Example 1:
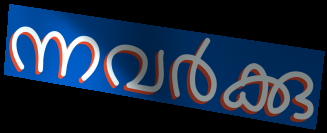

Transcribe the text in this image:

ന്നവർക്കു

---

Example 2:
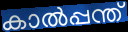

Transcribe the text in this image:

കാൽപ്പന്ത്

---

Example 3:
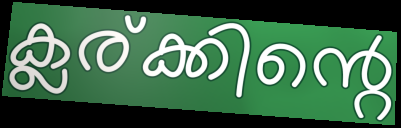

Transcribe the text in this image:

ക്ലര്ക്കിന്റെ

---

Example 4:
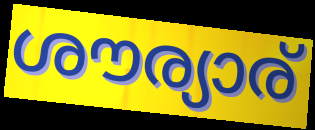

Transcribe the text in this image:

ശൗര്യാര്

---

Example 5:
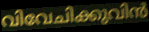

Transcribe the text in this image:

വിവേചിക്കുവിൻ